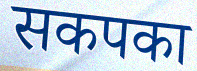
सकपका